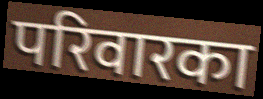
परिवारका